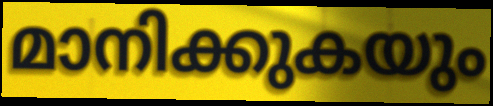
മാനിക്കുകയും